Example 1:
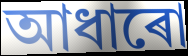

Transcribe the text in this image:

আধাৰো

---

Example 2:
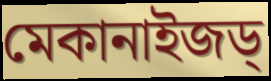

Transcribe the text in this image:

মেকানাইজড্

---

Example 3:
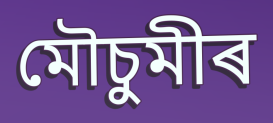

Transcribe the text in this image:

মৌচুমীৰ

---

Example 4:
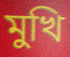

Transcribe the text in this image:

মুখি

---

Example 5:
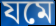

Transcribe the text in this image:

যমে